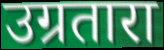
उग्रतारा